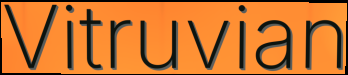
Vitruvian